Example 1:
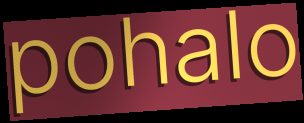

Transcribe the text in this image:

pohalo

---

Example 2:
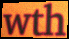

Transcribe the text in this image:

wth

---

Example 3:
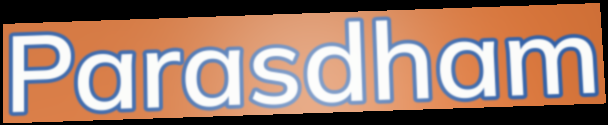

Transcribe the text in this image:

Parasdham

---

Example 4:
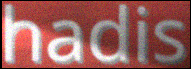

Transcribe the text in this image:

hadis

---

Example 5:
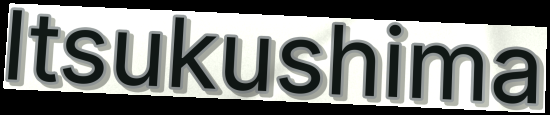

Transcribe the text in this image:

Itsukushima